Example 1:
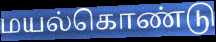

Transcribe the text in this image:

மயல்கொண்டு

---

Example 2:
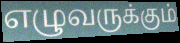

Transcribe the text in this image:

எழுவருக்கும்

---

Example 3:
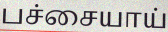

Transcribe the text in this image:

பச்சையாய்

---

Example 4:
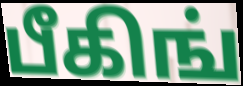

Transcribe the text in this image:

பீகிங்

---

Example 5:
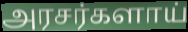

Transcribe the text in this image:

அரசர்களாய்